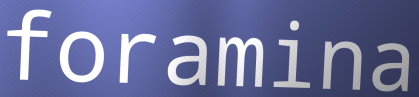
foramina